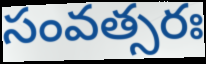
సంవత్సరః